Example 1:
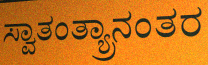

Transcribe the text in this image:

ಸ್ವಾತಂತ್ಯ್ರಾನಂತರ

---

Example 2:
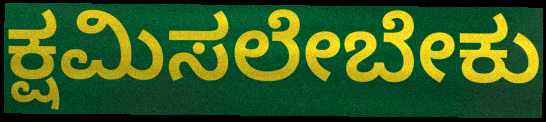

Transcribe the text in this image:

ಕ್ಷಮಿಸಲೇಬೇಕು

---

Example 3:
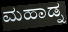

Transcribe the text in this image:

ಮಹಾಡ್ನ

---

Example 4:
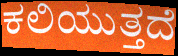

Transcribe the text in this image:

ಕಲಿಯುತ್ತದೆ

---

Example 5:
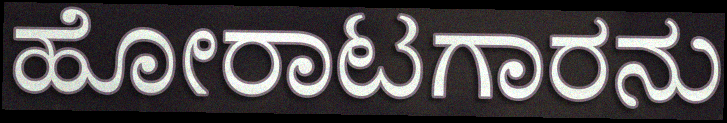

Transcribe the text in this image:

ಹೋರಾಟಗಾರನು